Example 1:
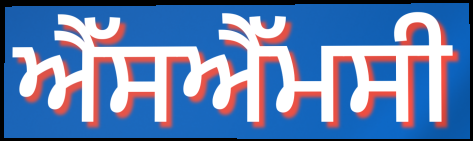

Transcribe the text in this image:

ਐੱਸਐੱਮਸੀ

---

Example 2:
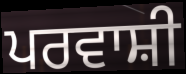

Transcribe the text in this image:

ਪਰਵਾਸ਼ੀ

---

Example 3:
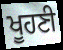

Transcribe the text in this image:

ਖੂਹਣੀ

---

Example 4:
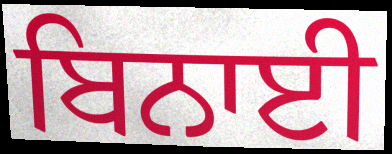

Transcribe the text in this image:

ਬਿਨਾਈ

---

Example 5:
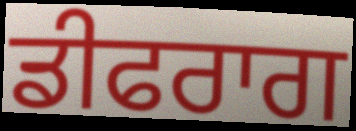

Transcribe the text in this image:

ਡੀਫਰਾਗ